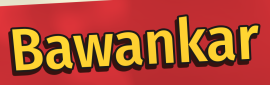
Bawankar